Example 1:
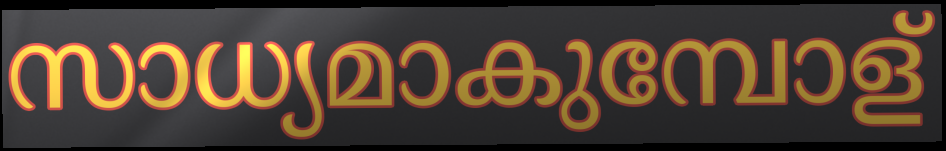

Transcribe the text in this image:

സാധ്യമാകുമ്പോള്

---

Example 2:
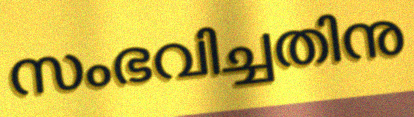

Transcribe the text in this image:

സംഭവിച്ചതിനു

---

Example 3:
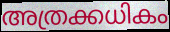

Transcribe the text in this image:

അത്രക്കധികം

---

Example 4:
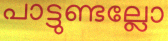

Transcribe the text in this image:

പാട്ടുണ്ടല്ലോ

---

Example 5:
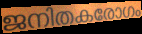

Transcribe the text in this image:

ജനിതകരോഗം